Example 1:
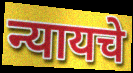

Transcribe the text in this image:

न्यायचे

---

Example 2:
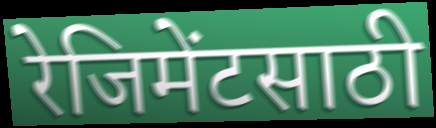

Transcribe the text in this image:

रेजिमेंटसाठी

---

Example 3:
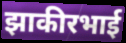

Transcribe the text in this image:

झाकीरभाई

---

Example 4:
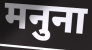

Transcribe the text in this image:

मनुना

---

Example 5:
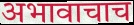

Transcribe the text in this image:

अभावाचाच